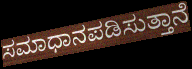
ಸಮಾಧಾನಪಡಿಸುತ್ತಾನೆ